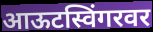
आऊटस्विंगरवर